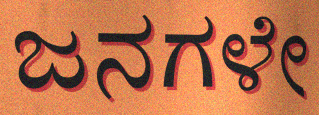
ಜನಗಳೇ